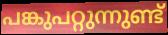
പങ്കുപറ്റുന്നുണ്ട്